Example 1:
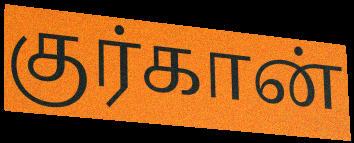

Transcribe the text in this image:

குர்கான்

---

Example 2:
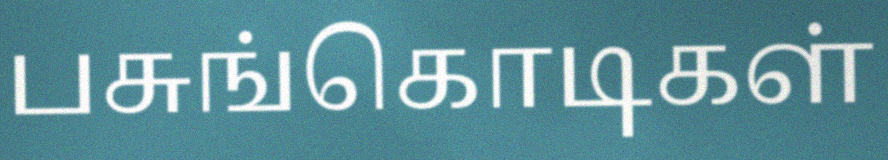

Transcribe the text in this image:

பசுங்கொடிகள்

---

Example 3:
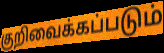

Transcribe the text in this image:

குறிவைக்கப்படும்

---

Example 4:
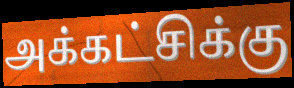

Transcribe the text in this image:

அக்கட்சிக்கு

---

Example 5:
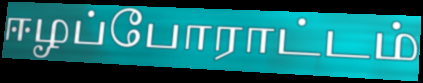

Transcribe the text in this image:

ஈழப்போராட்டம்